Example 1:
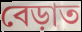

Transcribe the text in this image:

বেড়াত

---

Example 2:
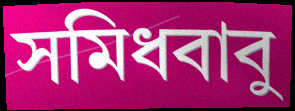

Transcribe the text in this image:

সমিধবাবু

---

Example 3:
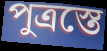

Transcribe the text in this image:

পুত্রস্তে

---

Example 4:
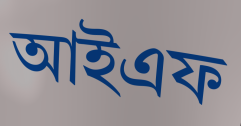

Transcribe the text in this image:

আইএফ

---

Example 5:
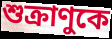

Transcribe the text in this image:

শুক্রাণুকে